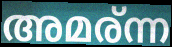
അമര്ന്ന